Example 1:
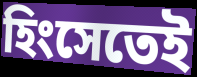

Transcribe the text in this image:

হিংসেতেই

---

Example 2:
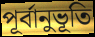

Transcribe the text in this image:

পূর্বানুভূতি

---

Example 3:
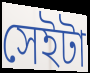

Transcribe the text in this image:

সেইটা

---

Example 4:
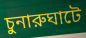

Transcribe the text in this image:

চুনারুঘাটে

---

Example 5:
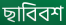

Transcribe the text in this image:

ছাবিবশ